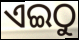
ଏଇଠୁ